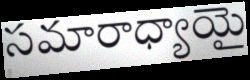
సమారాధ్యాయై